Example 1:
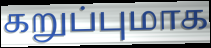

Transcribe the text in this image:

கறுப்புமாக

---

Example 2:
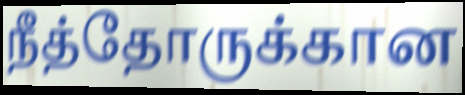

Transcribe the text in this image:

நீத்தோருக்கான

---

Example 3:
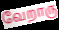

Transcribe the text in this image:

வேறாரு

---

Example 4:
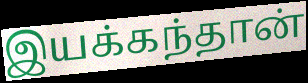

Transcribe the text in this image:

இயக்கந்தான்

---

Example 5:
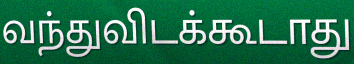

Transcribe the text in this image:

வந்துவிடக்கூடாது